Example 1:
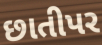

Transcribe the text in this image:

છાતીપર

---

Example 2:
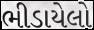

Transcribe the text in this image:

ભીડાયેલો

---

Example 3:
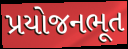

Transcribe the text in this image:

પ્રયોજનભૂત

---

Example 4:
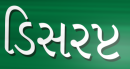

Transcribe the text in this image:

ડિસરપ્ટ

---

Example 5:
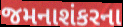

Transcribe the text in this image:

જમનાશંકરના